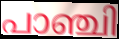
പാഞ്ചി